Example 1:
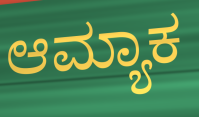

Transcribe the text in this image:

ಆಮ್ಯಾಕ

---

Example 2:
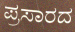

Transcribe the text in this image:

ಪ್ರಸಾರದ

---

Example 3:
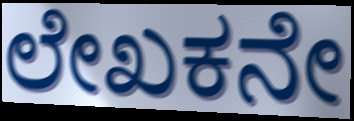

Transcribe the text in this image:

ಲೇಖಕನೇ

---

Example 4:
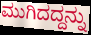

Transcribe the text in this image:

ಮುಗಿದದ್ದನ್ನು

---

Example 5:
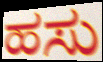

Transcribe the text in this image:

ಹಸು